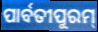
ପାର୍ବତୀପୁରମ୍